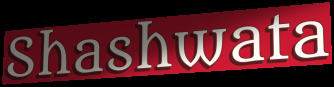
Shashwata